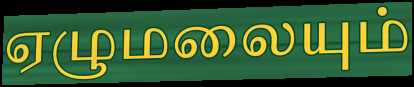
ஏழுமலையும்